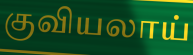
குவியலாய்